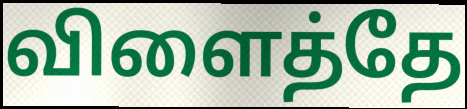
விளைத்தே